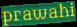
prawahi